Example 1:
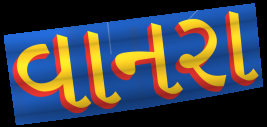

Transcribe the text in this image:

વાનરા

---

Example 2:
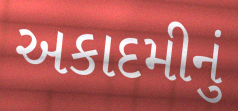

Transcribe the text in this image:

અકાદમીનું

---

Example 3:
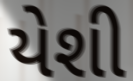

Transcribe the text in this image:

યેશી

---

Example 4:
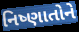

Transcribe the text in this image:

નિષ્ણાતોને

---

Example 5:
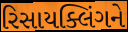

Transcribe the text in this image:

રિસાયક્લિંગને